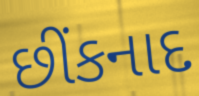
છીંકનાદ